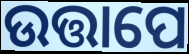
ଉତ୍ତାପେ